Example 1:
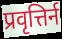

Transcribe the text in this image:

प्रवृत्तिर्न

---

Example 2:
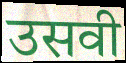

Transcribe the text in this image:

उसवी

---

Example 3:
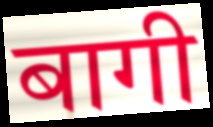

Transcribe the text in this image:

बागी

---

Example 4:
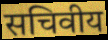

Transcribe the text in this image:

सचिवीय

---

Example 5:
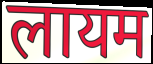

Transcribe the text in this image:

लायम